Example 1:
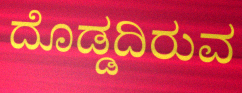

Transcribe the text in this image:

ದೊಡ್ಡದಿರುವ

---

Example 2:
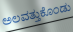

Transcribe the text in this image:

ಅಲವತ್ತುಕೊಂಡು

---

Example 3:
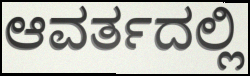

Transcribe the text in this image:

ಆವರ್ತದಲ್ಲಿ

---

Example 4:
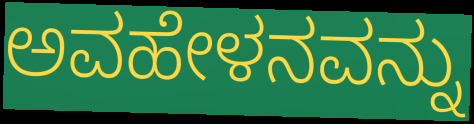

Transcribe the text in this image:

ಅವಹೇಳನವನ್ನು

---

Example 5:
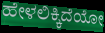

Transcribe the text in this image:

ಹೇಳಲಿಕ್ಕಿದೆಯೋ